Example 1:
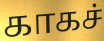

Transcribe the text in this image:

காகச்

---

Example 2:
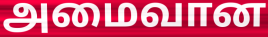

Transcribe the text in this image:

அமைவான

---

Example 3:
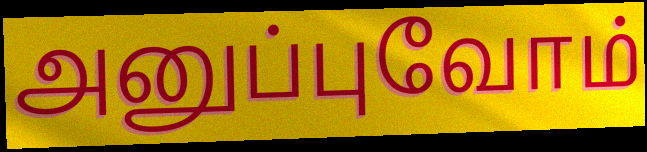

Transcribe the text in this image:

அனுப்புவோம்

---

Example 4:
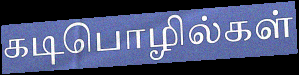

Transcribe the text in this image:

கடிபொழில்கள்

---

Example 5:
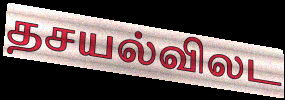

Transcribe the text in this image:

தசயல்விலட